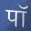
पॉ